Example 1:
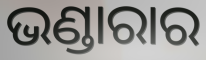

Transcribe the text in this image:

ଭଣ୍ଡାରାର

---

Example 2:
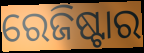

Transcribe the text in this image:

ରେଜିଷ୍ଟାର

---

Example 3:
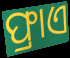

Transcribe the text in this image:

ଫ୍ରାଏ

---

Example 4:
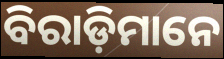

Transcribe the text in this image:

ବିରାଡ଼ିମାନେ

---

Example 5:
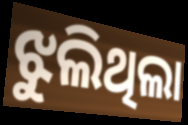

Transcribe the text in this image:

ଝୁଲିଥିଲା